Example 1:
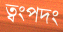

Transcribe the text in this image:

ত্বংপদং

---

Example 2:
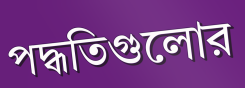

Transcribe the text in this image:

পদ্ধতিগুলোর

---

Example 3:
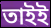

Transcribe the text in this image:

তাইই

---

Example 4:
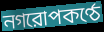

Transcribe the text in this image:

নগরোপকণ্ঠে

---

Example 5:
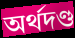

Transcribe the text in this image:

অর্থদণ্ড